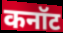
कनॉट